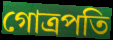
গোত্রপতি